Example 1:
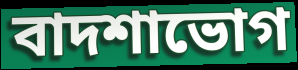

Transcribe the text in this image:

বাদশাভোগ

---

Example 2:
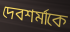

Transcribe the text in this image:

দেবশর্মাকে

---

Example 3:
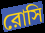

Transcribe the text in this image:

রোসি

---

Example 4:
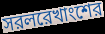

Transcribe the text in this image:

সরলরেখাংশের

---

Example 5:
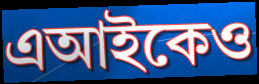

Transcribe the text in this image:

এআইকেও